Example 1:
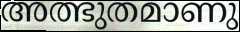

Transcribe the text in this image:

അത്ഭുതമാണു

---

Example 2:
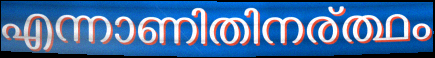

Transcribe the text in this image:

എന്നാണിതിനര്ത്ഥം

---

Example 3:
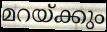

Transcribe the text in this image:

മറയ്ക്കും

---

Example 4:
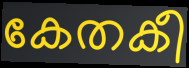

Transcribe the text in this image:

കേതകീ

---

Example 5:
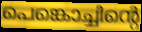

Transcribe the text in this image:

പെങ്കൊച്ചിന്റെ